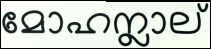
മോഹന്ലാല്